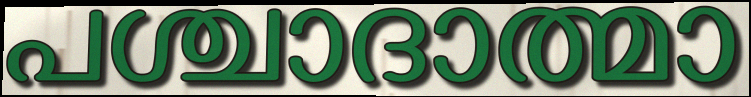
പശ്ചാദാത്മാ